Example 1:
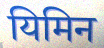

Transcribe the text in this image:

यिमिन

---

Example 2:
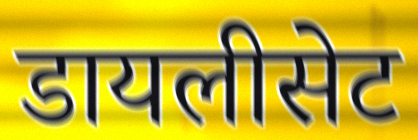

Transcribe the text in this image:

डायलीसेट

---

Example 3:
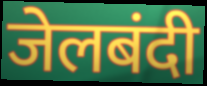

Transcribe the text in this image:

जेलबंदी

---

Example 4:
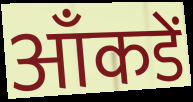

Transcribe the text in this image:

आँकडें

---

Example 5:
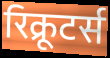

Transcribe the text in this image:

रिक्रूटर्स